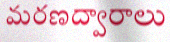
మరణద్వారాలు